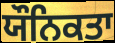
ਯੌਨਿਕਤਾ